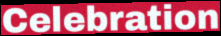
Celebration